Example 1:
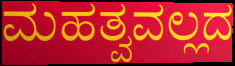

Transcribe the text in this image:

ಮಹತ್ವವಲ್ಲದ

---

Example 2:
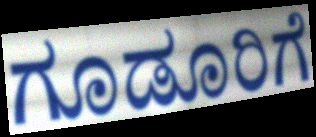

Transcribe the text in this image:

ಗೂಡೂರಿಗೆ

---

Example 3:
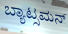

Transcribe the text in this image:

ಬ್ಯಾಟ್ಸಮನ್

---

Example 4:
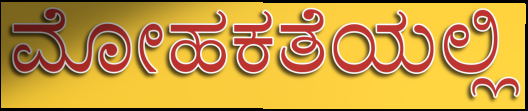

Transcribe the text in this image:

ಮೋಹಕತೆಯಲ್ಲಿ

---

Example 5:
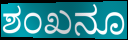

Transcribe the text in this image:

ಶಂಖನೂ